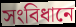
সংবিধানে